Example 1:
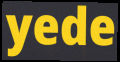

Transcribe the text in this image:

yede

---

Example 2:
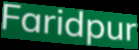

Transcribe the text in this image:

Faridpur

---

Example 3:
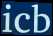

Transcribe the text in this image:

icb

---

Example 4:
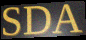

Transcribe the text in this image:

SDA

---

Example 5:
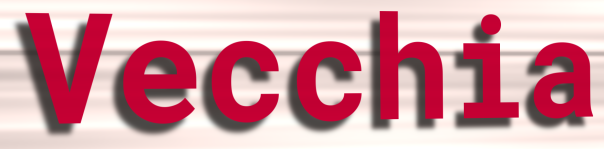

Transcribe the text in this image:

Vecchia